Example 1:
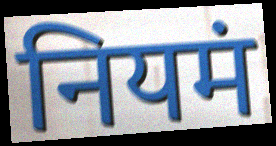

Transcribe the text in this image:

नियमं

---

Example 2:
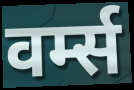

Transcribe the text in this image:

वर्म्स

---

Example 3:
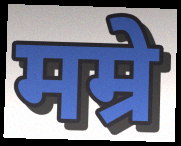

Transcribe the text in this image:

मम्रे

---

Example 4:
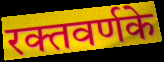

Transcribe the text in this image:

रक्तवर्णके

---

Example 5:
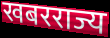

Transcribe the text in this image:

खबरराज्य